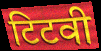
टिटवी